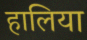
हालिया